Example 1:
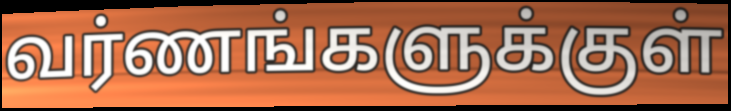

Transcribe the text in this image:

வர்ணங்களுக்குள்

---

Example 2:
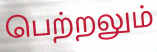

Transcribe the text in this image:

பெற்றலும்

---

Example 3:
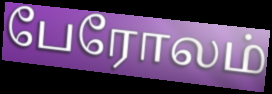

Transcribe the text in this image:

பேரோலம்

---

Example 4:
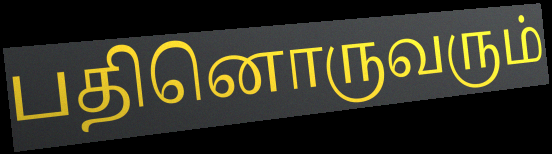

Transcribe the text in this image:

பதினொருவரும்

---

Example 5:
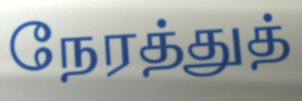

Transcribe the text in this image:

நேரத்துத்